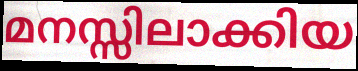
മനസ്സിലാക്കിയ